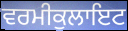
ਵਰਮੀਕੁਲਾਇਟ